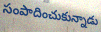
సంపాదించుకున్నాడు